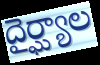
దైర్ఘ్యాల